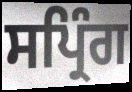
ਸਪ੍ਰਿੰਗ